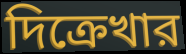
দিক্রেখার